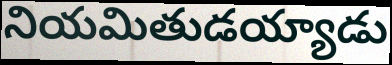
నియమితుడయ్యాడు